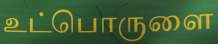
உட்பொருளை